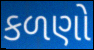
કળણો